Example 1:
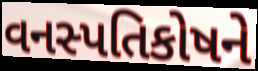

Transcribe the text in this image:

વનસ્પતિકોષને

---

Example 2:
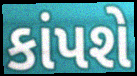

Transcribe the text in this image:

કાંપશે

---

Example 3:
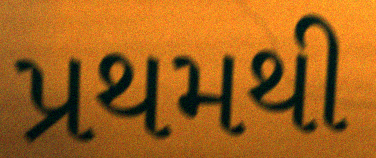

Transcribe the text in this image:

પ્રથમથી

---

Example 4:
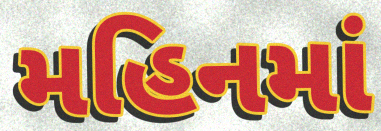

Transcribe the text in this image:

મહિનમાં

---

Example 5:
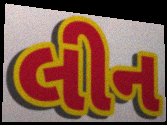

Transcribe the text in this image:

લીન